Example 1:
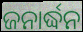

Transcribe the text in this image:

ଜନାର୍ଦ୍ଧନ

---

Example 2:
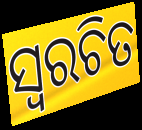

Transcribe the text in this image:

ସ୍ଵରଚିତ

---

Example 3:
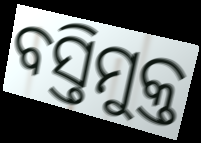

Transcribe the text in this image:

ବସ୍ତିମୁକ୍ତ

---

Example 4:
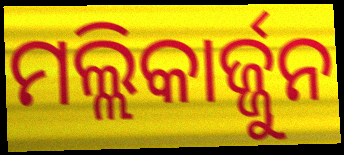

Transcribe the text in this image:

ମଲ୍ଲିକାର୍ଜ୍ଜୁନ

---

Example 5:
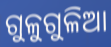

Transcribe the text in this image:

ଗୁଳୁଗୁଳିଆ